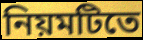
নিয়মটিতে